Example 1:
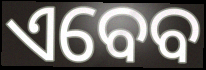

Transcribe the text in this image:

ଏବେବ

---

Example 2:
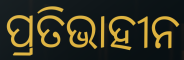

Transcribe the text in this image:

ପ୍ରତିଭାହୀନ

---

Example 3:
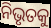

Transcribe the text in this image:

ନିଭୃତକୁ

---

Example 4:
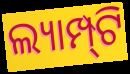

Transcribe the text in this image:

ଲ୍ୟାମ୍ପ୍‍ଟି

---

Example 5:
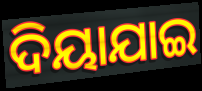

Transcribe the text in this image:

ଦିୟାଯାଇ